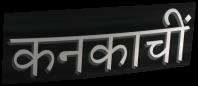
कनकाचीं